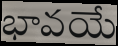
భావయే